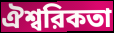
ঐশ্বরিকতা